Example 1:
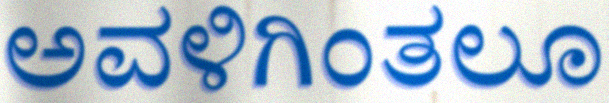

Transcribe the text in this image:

ಅವಳಿಗಿಂತಲೂ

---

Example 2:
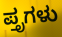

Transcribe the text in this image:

ಪ್ತೃಗಳು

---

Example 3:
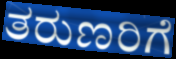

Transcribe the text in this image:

ತರುಣರಿಗೆ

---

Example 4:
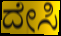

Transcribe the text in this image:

ದೇಸಿ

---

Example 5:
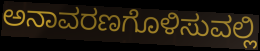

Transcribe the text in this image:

ಅನಾವರಣಗೊಳಿಸುವಲ್ಲಿ